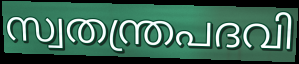
സ്വതന്ത്രപദവി